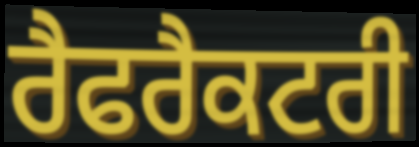
ਰੈਫਰੈਕਟਰੀ